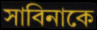
সাবিনাকে